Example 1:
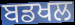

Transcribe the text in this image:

ਬਡਖਲ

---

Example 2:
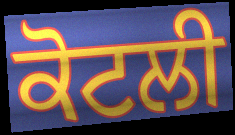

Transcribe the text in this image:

ਕੋਟਲੀ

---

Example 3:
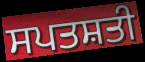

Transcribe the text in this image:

ਸਪਤਸ਼ਤੀ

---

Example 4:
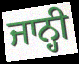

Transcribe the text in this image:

ਜਾਨ੍ਹੀ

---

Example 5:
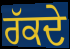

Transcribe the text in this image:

ਰੱਕਦੇ